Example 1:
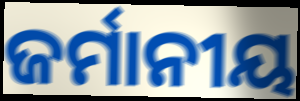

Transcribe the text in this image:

ଜର୍ମାନୀୟ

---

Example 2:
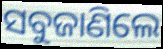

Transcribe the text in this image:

ସବୁଜାଣିଲେ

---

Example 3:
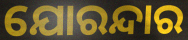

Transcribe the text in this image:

ଯୋରନ୍ଦାର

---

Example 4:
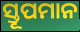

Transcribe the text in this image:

ସ୍ତୂପମାନ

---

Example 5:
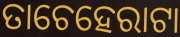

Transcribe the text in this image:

ତାଚେହେରାଟା